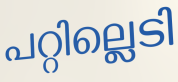
പറ്റില്ലെടി